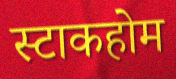
स्टाकहोम